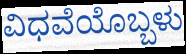
ವಿಧವೆಯೊಬ್ಬಳು